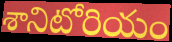
శానిటోరియం